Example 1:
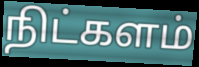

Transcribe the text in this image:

நிட்களம்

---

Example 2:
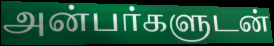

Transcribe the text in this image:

அன்பர்களுடன்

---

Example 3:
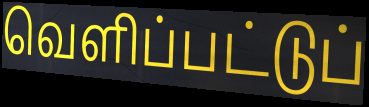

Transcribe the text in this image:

வெளிப்பட்டுப்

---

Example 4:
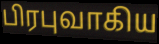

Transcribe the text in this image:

பிரபுவாகிய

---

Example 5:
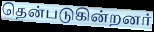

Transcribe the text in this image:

தென்படுகின்றனர்